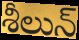
శీలున్